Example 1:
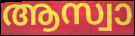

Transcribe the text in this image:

ആസ്വാ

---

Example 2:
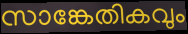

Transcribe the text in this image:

സാങ്കേതികവും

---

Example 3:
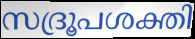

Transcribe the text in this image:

സദ്രൂപശക്തി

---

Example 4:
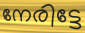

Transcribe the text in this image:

നേരിട്ടേ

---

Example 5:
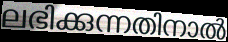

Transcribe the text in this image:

ലഭിക്കുന്നതിനാൽ